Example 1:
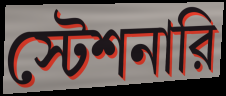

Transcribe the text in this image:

স্টেশনারি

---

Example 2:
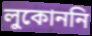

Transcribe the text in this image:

লুকোননি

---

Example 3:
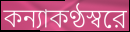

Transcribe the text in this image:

কন্যাকণ্ঠস্বরে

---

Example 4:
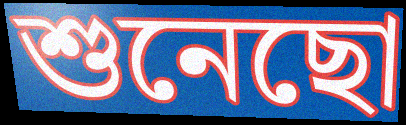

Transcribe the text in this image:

শুনেছো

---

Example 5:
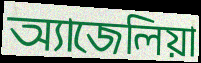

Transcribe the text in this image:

অ্যাজেলিয়া